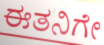
ಈತನಿಗೇ